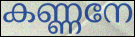
കണ്ണനേ